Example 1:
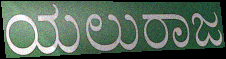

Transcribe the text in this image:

ಯಲುರಾಜ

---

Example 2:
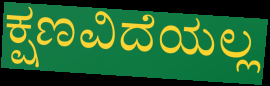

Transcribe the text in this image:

ಕ್ಷಣವಿದೆಯಲ್ಲ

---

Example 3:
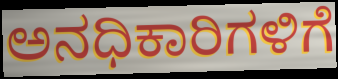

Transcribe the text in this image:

ಅನಧಿಕಾರಿಗಳಿಗೆ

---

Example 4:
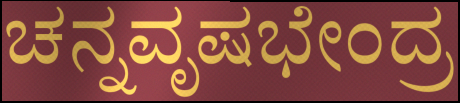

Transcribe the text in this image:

ಚನ್ನವೃಷಭೇಂದ್ರ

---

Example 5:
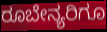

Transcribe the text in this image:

ರೂಬೇನ್ಯರಿಗೂ